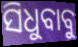
ସିଧୁବାବୁ